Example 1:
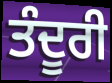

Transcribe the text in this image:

ਤੰਦੂਰੀ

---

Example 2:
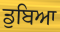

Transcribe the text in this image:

ਡੁਬਿਆ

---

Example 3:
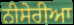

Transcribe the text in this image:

ਨੀਸੇਰੀਆ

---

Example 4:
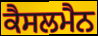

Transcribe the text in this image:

ਕੈਸਲਮੈਨ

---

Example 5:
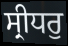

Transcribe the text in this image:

ਸ੍ਰੀਧਰੁ